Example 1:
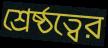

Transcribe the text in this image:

শ্রেষ্ঠত্বের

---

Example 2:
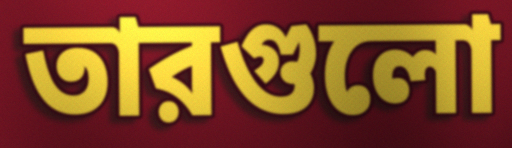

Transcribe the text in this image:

তারগুলো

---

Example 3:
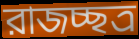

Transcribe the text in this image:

রাজচ্ছত্র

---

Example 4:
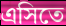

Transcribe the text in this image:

এসিতে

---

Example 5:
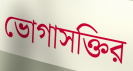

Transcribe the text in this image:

ভোগাসক্তির